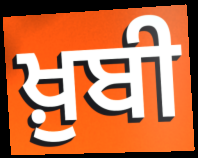
ਖ਼ੁਬੀ